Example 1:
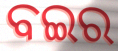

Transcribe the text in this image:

ବଇର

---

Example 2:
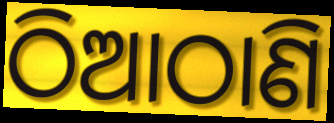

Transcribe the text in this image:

ଠିଆଠାଣି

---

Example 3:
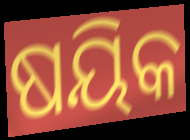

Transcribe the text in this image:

ଷୟିକ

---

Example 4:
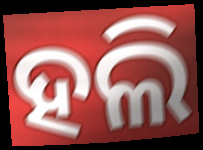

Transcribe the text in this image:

ହଲି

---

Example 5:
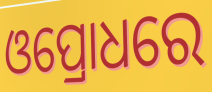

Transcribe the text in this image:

ଓପ୍ରୋଧରେ